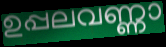
ഉപ്പലവണ്ണാ